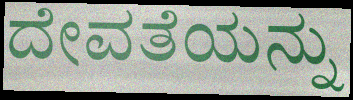
ದೇವತೆಯನ್ನು